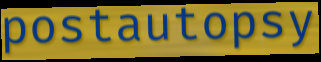
postautopsy